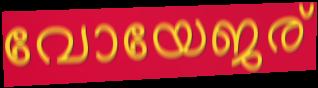
വോയേജര്